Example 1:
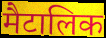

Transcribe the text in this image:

मैटालिक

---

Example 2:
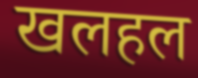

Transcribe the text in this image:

खलहल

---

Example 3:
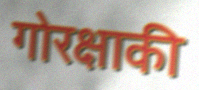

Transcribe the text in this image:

गोरक्षाकी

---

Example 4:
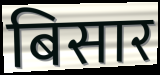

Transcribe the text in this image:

बिसार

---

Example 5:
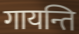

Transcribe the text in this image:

गायन्ति